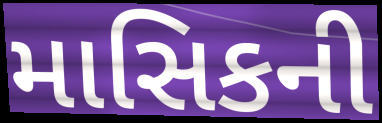
માસિકની